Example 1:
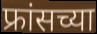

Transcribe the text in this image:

फ्रांसच्या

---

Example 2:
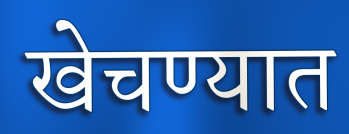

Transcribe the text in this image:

खेचण्यात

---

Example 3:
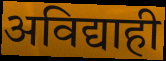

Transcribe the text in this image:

अविद्याही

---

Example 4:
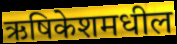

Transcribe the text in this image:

ऋषिकेशमधील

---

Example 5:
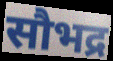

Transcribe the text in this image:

सौभद्र